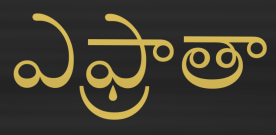
ఎఫ్రాతా